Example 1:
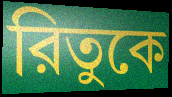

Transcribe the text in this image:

রিতুকে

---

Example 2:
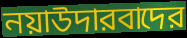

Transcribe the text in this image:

নয়াউদারবাদের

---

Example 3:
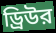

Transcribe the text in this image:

ড্রিউর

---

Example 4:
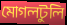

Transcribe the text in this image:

মোগলটুলি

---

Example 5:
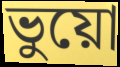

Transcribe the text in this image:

ভুয়ো